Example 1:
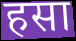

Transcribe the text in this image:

हसा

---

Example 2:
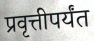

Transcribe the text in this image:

प्रवृत्तीपर्यंत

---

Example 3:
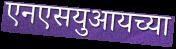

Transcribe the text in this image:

एनएसयुआयच्या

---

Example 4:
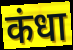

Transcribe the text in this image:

कंधा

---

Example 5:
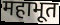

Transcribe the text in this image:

महाभूत